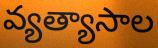
వ్యత్యాసాల